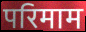
परिमाम